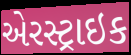
એરસ્ટ્રાઇક